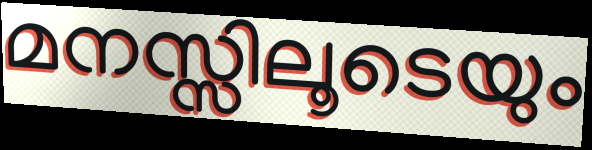
മനസ്സിലൂടെയും